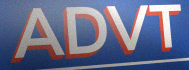
ADVT